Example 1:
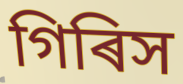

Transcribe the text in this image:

গিৰিস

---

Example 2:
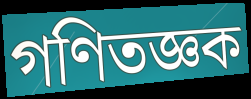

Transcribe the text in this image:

গণিতজ্ঞক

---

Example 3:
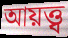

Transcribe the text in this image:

আয়ত্ত্ব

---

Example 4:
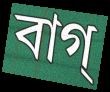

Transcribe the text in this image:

বাগ্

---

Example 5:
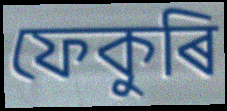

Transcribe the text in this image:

ফেকুৰি